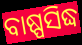
ବାଷ୍ପସିଦ୍ଧ